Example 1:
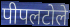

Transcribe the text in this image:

पीपलटोले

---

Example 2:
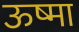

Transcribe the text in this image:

ऊष्‍मा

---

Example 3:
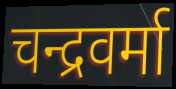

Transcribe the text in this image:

चन्द्रवर्मा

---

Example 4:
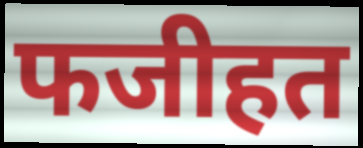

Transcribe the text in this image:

फजीहत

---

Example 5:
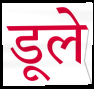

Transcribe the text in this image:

डूले